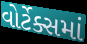
વોર્ટેક્સમાં